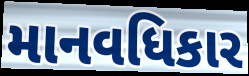
માનવધિકાર